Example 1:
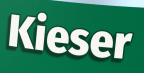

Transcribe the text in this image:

Kieser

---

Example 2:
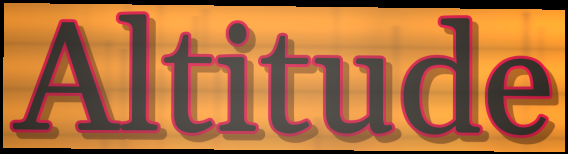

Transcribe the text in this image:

Altitude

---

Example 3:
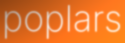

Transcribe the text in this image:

poplars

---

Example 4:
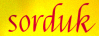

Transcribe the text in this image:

sorduk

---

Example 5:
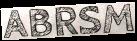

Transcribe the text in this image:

ABRSM